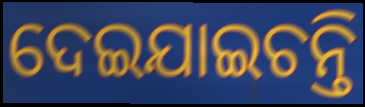
ଦେଇଯାଇଚନ୍ତି